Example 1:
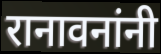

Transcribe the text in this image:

रानावनांनी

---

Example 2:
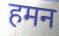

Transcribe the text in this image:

हमन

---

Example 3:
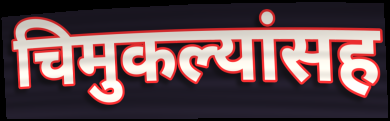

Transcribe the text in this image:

चिमुकल्यांसह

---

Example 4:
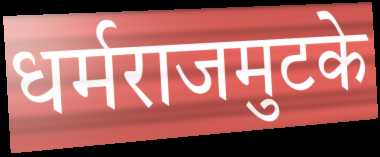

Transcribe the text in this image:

धर्मराजमुटके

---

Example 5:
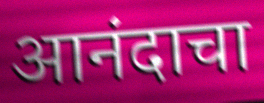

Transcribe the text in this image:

आनंदाचा